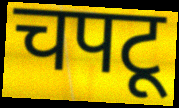
चपटू